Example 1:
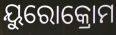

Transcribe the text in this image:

ୟୁରୋକ୍ରୋମ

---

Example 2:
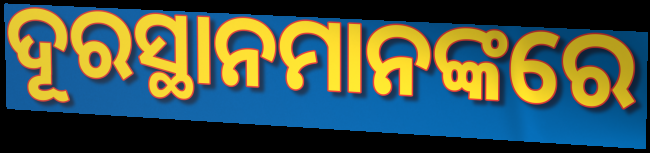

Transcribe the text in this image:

ଦୂରସ୍ଥାନମାନଙ୍କରେ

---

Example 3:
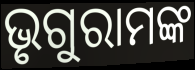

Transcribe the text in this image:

ଭୃଗୁରାମଙ୍କ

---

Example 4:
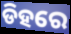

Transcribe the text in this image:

ଡିହରେ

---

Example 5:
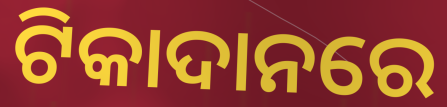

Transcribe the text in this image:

ଟିକାଦାନରେ